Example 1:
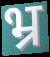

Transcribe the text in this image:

भ्र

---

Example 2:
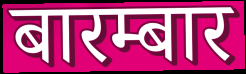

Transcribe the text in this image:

बारम्बार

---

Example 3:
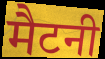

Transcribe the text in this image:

मैटनी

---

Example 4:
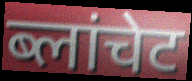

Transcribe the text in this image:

ब्लांचेट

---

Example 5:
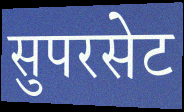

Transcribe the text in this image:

सुपरसेट